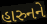
હારુનને